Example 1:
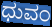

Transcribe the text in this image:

ಧುವಂ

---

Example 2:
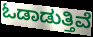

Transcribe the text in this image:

ಓಡಾಡುತ್ತಿವೆ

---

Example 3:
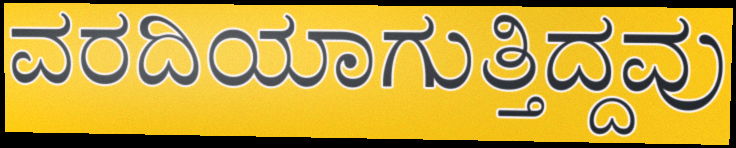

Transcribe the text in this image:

ವರದಿಯಾಗುತ್ತಿದ್ದವು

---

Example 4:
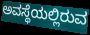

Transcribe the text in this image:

ಅವಸ್ಥೆಯಲ್ಲಿರುವ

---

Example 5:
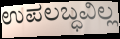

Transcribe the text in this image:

ಉಪಲಬ್ಧವಿಲ್ಲ